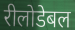
रीलोडेबल